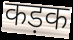
कड़क